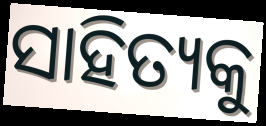
ସାହିତ୍ୟକୁ